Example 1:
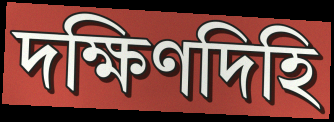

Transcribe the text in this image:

দক্ষিণদিহি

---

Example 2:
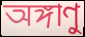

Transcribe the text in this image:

অঙ্গাণু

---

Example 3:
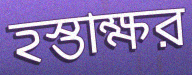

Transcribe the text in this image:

হস্তাক্ষর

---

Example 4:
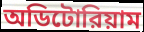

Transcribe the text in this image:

অডিটোরিয়াম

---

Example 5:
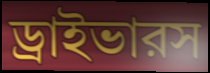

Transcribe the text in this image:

ড্রাইভারস